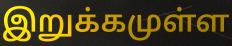
இறுக்கமுள்ள